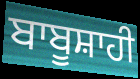
ਬਾਬੂਸ਼ਾਹੀ